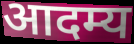
आदम्य